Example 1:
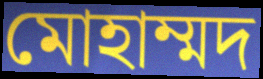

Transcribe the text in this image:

মোহাম্মদ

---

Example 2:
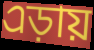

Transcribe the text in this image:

এড়ায়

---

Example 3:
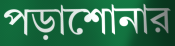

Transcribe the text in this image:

পড়াশোনার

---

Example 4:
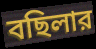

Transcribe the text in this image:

বছিলার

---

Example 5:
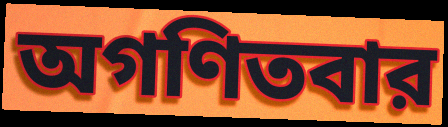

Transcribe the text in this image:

অগণিতবার